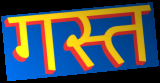
गस्त